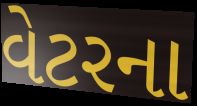
વેટરના